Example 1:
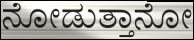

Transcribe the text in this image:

ನೋಡುತ್ತಾನೋ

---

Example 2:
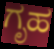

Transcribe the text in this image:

ಗೃಹ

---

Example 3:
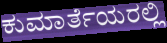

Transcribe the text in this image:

ಕುಮಾರ್ತೆಯರಲ್ಲಿ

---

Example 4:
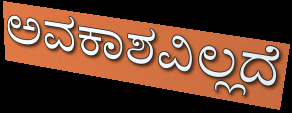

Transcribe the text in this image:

ಅವಕಾಶವಿಲ್ಲದೆ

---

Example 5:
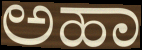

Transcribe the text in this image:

ಅಹಾ